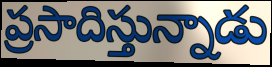
ప్రసాదిస్తున్నాడు